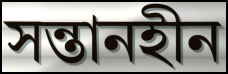
সন্তানহীন